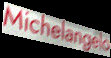
Michelangelo